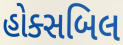
હોક્સબિલ